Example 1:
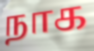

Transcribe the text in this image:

நாக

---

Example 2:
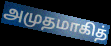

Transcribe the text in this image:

அமுதமாகித்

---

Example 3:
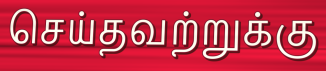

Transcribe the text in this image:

செய்தவற்றுக்கு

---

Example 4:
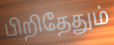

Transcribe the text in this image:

பிறிதேதும்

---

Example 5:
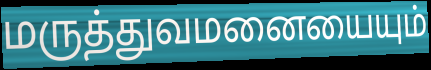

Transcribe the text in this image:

மருத்துவமனையையும்